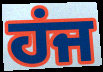
ਹਂਜ